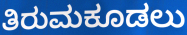
ತಿರುಮಕೂಡಲು